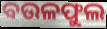
ବଉଳଫୁଲ